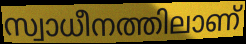
സ്വാധീനത്തിലാണ്